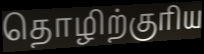
தொழிற்குரிய